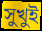
সুখুই